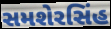
સમશેરસિંહ